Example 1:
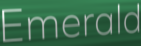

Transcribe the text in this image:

Emerald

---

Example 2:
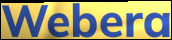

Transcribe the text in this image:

Webera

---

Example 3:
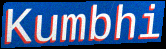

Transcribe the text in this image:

Kumbhi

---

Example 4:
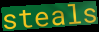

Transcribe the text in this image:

steals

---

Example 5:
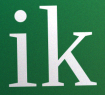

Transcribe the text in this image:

ik